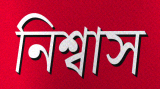
নিশ্বাস